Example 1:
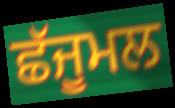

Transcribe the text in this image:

ਛੱਜੂਮਲ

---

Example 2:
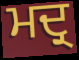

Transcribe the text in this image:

ਮਦ੍ਰ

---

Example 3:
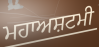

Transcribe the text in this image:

ਮਹਾਅਸ਼ਟਮੀ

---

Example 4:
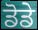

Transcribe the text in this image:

ਡੋਡੇ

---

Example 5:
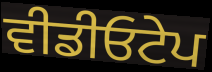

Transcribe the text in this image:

ਵੀਡੀਓਟੇਪ